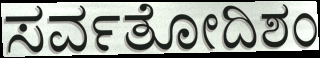
ಸರ್ವತೋದಿಶಂ